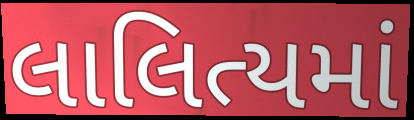
લાલિત્યમાં